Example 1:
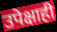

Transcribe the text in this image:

उपेक्षाही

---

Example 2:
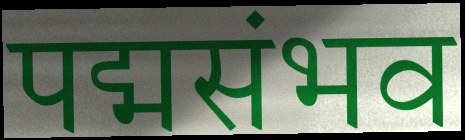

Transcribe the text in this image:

पद्मसंभव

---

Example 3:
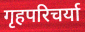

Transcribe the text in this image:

गृहपरिचर्या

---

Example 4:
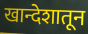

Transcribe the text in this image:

खान्देशातून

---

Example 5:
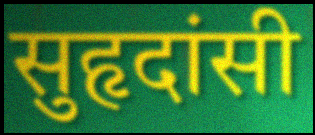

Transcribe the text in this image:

सुहृदांसी